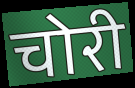
चोरी